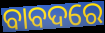
ବାବଦରେ